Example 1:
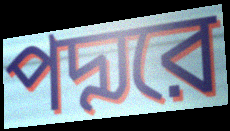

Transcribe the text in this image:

পদ্মরে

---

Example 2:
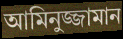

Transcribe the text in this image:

আমিনুজ্জামান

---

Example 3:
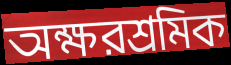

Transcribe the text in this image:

অক্ষরশ্রমিক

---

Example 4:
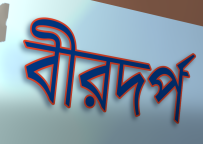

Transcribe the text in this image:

বীরদর্প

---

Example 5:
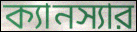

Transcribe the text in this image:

ক্যানস্যার